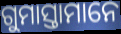
ଗୁମାସ୍ତାମାନେ